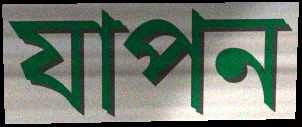
যাপন